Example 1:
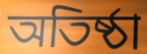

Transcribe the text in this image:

অতিষ্ঠা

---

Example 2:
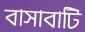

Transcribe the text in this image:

বাসাবাটি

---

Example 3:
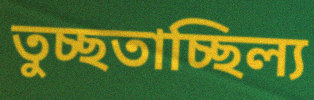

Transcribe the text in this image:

তুচ্ছতাচ্ছিল্য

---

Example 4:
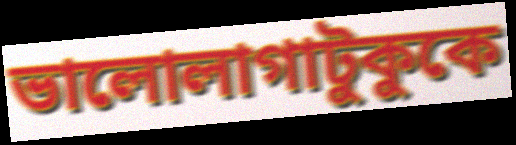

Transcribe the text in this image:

ভালোলাগাটুকুকে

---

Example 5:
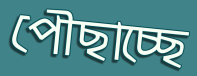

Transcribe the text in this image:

পৌছাচ্ছে